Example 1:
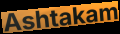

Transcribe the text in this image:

Ashtakam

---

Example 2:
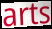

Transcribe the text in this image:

arts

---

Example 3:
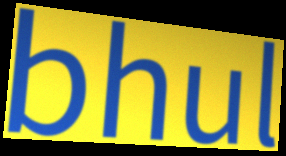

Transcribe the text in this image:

bhul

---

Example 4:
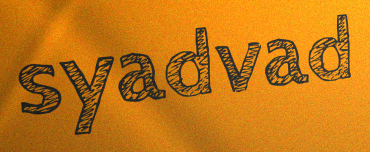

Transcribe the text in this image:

syadvad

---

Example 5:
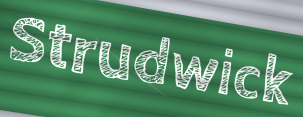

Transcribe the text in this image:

Strudwick